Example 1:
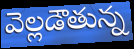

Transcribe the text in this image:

వెల్లడౌతున్న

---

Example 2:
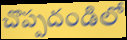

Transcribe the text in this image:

చొప్పదండిలో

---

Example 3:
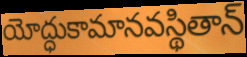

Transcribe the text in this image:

యోద్ధుకామానవస్థితాన్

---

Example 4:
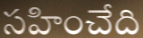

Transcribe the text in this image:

సహించేది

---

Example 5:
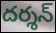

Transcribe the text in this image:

దర్శన్